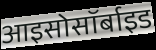
आइसोसॉर्बाइड